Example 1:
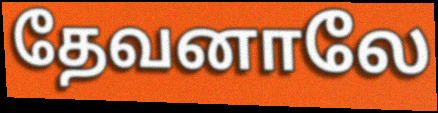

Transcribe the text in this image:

தேவனாலே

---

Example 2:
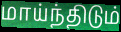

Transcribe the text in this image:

மாய்ந்திடும்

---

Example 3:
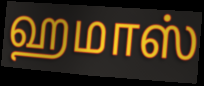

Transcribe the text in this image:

ஹமாஸ்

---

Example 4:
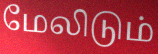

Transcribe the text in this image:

மேலிடும்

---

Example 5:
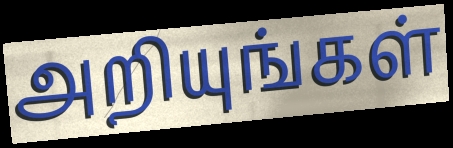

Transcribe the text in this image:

அறியுங்கள்